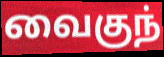
வைகுந்